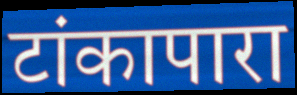
टांकापारा